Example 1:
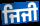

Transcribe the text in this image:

ਜਿਜੀ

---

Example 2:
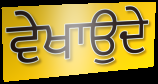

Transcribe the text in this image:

ਵੇਖਾਉਦੇ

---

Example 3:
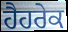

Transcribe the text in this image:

ਹੈਹਰੇਕ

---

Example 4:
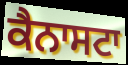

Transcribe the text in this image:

ਕੈਨਾਸਟਾ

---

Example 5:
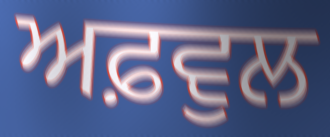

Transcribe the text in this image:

ਅਫ਼ਵੁਲ